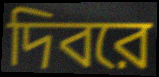
দিবরে